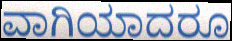
ವಾಗಿಯಾದರೂ